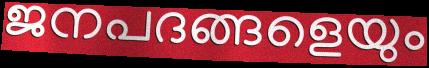
ജനപദങ്ങളെയും